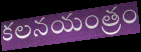
కలనయంత్రం